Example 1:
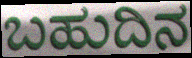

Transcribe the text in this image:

ಬಹುದಿನ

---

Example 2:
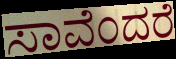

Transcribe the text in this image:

ಸಾವೆಂದರೆ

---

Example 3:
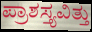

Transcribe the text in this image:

ಪ್ರಾಶಸ್ತ್ಯವಿತ್ತು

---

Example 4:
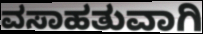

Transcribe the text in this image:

ವಸಾಹತುವಾಗಿ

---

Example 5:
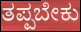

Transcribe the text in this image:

ತಪ್ಪಬೇಕು